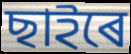
ছাইৰে